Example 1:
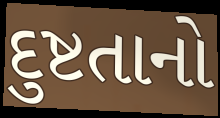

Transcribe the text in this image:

દુષ્ટતાનો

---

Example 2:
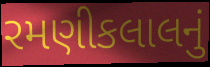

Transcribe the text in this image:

રમણીકલાલનું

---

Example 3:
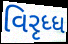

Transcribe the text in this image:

વિરૃધ્ધ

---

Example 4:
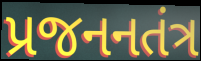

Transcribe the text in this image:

પ્રજનનતંત્ર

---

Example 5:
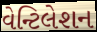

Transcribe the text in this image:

વેન્ટિલેશન